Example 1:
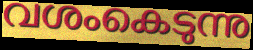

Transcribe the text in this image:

വശംകെടുന്നു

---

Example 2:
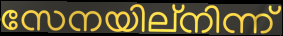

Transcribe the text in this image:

സേനയില്നിന്ന്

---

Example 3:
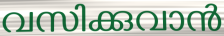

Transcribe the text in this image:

വസിക്കുവാൻ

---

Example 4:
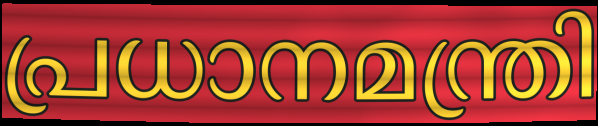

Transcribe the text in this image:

പ്രധാനമന്ത്രി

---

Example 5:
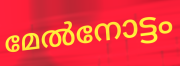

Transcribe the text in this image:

മേൽനോട്ടം